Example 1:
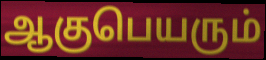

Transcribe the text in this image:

ஆகுபெயரும்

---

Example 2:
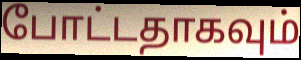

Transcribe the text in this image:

போட்டதாகவும்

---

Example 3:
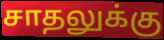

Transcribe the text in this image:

சாதலுக்கு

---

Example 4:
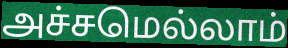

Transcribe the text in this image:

அச்சமெல்லாம்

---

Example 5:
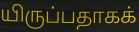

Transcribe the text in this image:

யிருப்பதாகக்